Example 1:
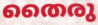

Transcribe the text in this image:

തൈരു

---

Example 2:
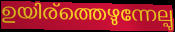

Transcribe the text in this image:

ഉയിര്ത്തെഴുന്നേല്പു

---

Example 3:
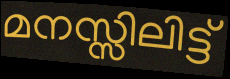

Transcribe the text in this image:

മനസ്സിലിട്ട്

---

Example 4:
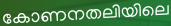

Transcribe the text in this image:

കോണനതലിയിലെ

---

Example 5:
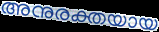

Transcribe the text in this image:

അനുരക്തയായ